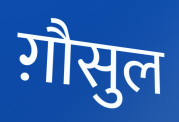
ग़ौसुल